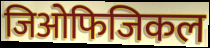
जिओफिजिकल